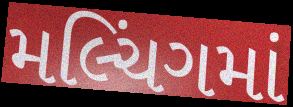
મલ્ચિંગમાં